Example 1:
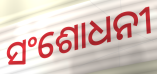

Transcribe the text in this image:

ସଂଶୋଧନୀ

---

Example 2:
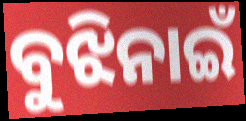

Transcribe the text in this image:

ବୁଝିନାଇଁ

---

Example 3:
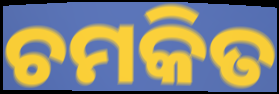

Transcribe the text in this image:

ଚମକିତ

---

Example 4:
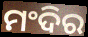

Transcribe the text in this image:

ମଂଦିର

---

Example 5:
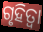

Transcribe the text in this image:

ଗୃହିତ୍ବା